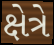
ક્ષેત્રે